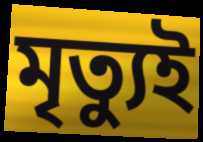
মৃত্যুই